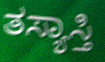
ತಸ್ಯಾಸ್ತಿ